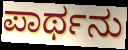
ಪಾರ್ಥನು